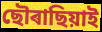
ছৌৰাছিয়াই